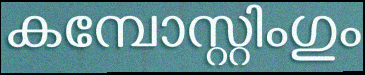
കമ്പോസ്റ്റിംഗും